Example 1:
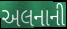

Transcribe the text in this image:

અલનાની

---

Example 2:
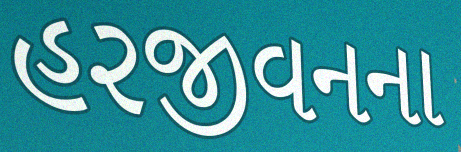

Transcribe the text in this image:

હરજીવનના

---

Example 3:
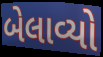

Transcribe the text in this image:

બેલાવ્યો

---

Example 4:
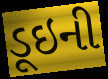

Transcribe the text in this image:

ડૂઇની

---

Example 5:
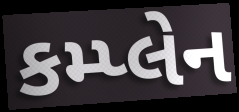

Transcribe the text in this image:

કમ્પ્લેન